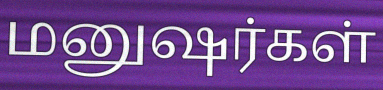
மனுஷர்கள்